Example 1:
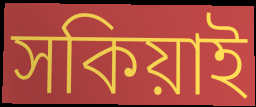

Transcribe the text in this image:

সকিয়াই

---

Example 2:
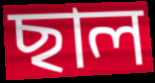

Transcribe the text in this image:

ছাল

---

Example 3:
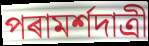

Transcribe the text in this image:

পৰামৰ্শদাত্ৰী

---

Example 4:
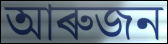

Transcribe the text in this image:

আৰুজন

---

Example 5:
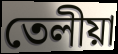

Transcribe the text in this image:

তেলীয়া